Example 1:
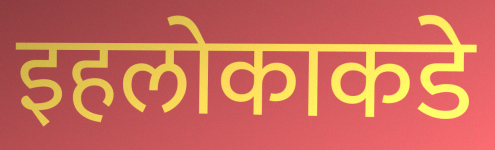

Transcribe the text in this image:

इहलोकाकडे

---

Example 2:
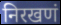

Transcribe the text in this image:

निरखणं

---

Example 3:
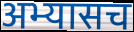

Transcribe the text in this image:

अभ्यासच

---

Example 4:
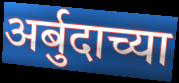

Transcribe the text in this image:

अर्बुदाच्या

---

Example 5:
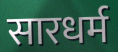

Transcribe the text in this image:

सारधर्म